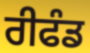
ਰੀਫੰਡ